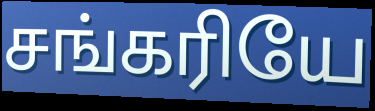
சங்கரியே